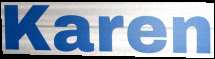
Karen